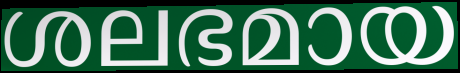
ശലഭമായ